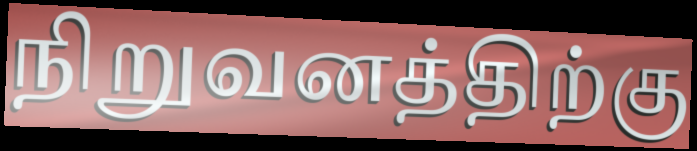
நிறுவனத்திற்கு